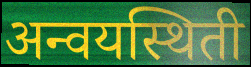
अन्वयस्थिती